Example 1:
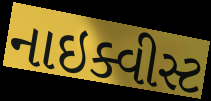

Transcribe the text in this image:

નાઇક્વીસ્ટ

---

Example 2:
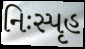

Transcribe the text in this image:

નિઃસ્પૃહ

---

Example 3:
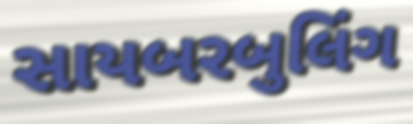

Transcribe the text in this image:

સાયબરબુલિંગ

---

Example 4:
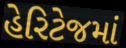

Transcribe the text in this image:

હેરિટેજમાં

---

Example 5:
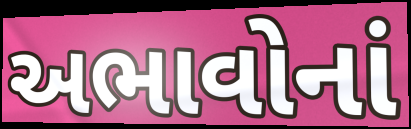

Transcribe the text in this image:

અભાવોનાં